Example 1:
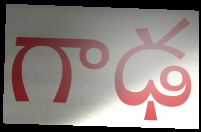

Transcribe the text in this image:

గాఢ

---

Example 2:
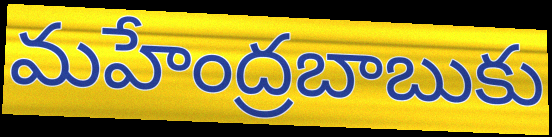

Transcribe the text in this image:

మహేంద్రబాబుకు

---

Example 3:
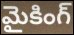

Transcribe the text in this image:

మైకింగ్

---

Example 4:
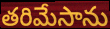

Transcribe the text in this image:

తరిమేసాను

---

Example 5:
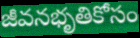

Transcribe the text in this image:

జీవనభృతికోసం